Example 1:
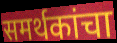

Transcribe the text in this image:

समर्थकांचा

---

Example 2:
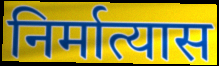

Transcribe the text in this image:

निर्मात्यास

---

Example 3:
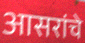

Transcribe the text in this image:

आसरांचे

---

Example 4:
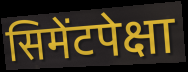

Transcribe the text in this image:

सिमेंटपेक्षा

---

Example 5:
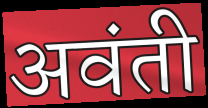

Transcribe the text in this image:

अवंती